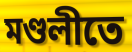
মণ্ডলীতে